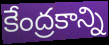
కేంద్రకాన్ని